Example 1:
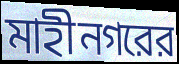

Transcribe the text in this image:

মাহীনগরের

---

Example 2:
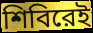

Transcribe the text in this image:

শিবিরেই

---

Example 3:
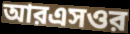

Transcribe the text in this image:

আরএসওর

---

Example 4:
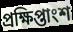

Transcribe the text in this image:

প্রক্ষিপ্তাংশ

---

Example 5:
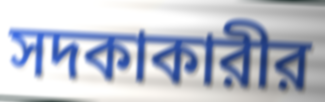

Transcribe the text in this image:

সদকাকারীর